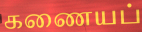
கணையப்